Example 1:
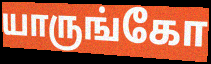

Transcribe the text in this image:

யாருங்கோ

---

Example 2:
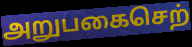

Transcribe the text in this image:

அறுபகைசெற்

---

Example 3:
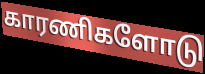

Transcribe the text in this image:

காரணிகளோடு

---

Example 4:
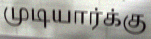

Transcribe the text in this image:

முடியார்க்கு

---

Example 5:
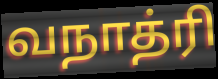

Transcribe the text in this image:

வநாத்ரி